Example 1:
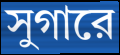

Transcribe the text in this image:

সুগারে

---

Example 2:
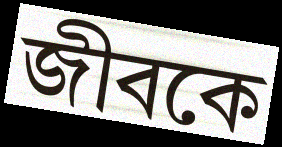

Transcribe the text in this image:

জীবকে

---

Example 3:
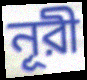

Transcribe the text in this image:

নূরী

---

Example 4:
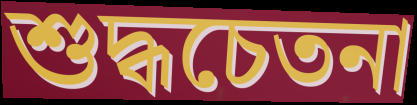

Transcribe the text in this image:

শুদ্ধচেতনা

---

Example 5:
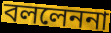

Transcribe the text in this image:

বললেননা